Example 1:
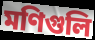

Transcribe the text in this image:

মণিগুলি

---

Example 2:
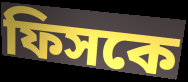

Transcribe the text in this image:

ফিসকে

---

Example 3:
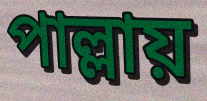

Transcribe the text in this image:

পাল্লায়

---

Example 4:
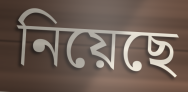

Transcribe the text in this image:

নিয়েছে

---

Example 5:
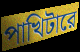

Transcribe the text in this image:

পাখিটারে